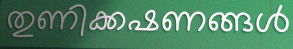
തുണിക്കഷണങ്ങൾ